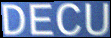
DECU